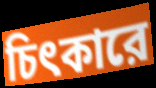
চিৎকারে